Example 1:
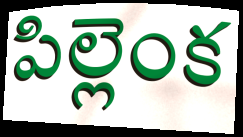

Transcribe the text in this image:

పిల్లెంక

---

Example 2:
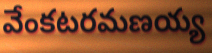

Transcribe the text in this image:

వేంకటరమణయ్య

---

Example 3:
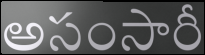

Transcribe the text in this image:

అసంసారీ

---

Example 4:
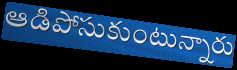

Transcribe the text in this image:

ఆడిపోసుకుంటున్నారు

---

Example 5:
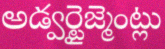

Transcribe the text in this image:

అడ్వర్టైజ్మెంట్లు